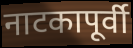
नाटकापूर्वी